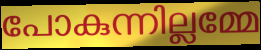
പോകുന്നില്ലമ്മേ